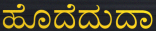
ಹೊದೆದುದಾ